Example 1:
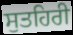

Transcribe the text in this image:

ਸੁਤਹਿਰੀ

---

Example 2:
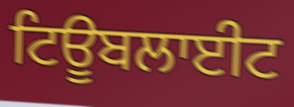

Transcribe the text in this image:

ਟਿਊਬਲਾਈਟ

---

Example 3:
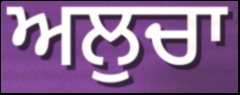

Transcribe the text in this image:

ਅਲੁਚਾ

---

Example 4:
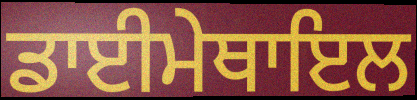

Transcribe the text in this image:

ਡਾਈਮੇਥਾਇਲ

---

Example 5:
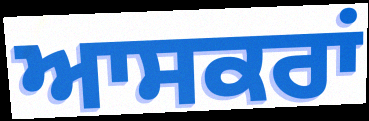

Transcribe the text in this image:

ਆਸਕਰਾਂ